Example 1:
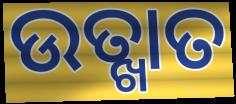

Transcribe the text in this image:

ଉତ୍ଖାତ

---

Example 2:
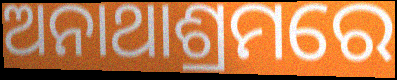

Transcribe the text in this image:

ଅନାଥାଶ୍ରମରେ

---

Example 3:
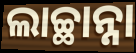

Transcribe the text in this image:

ଲାଚ୍ଛାନ୍ନା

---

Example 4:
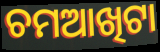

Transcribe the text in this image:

ଚମଆଖିଟା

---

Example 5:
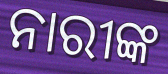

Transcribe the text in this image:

ନାରୀଙ୍କ